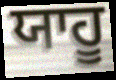
ਯਾਹੂ